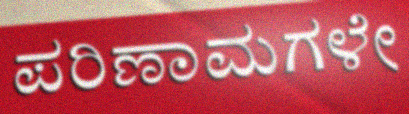
ಪರಿಣಾಮಗಳೇ